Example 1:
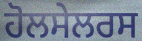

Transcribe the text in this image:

ਹੋਲਸੇਲਰਸ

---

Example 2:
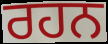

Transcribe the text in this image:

ਰਹਨ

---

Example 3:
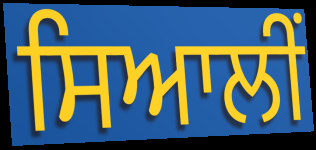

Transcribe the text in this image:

ਸਿਆਲੀਂ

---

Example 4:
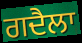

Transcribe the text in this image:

ਗਦੈਲਾ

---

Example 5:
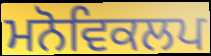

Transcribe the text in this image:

ਮਨੋਵਿਕਲਪ